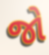
જો